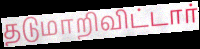
தடுமாறிவிட்டார்